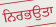
ਨਿਰਭਉਤਾ